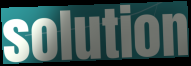
solution